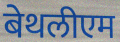
बेथलीएम